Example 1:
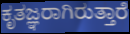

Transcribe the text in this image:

ಕೃತಜ್ಞರಾಗಿರುತ್ತಾರೆ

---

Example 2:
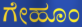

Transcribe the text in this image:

ಗೇಹೂಂ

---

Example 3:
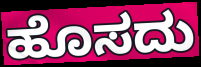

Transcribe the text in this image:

ಹೊಸದು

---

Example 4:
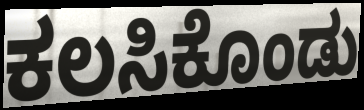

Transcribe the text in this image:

ಕಲಸಿಕೊಂಡು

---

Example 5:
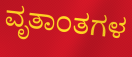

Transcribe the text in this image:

ವೃತಾಂತಗಳ